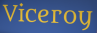
Viceroy